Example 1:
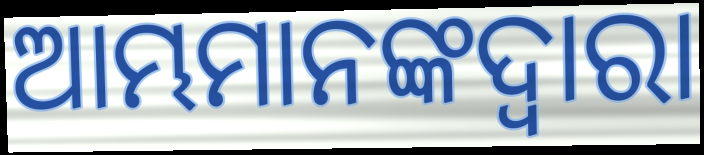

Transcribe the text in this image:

ଆମ୍ଭମାନଙ୍କଦ୍ୱାରା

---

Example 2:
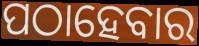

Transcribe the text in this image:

ପଠାହେବାର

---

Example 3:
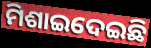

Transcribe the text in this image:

ମିଶାଇଦେଇଛି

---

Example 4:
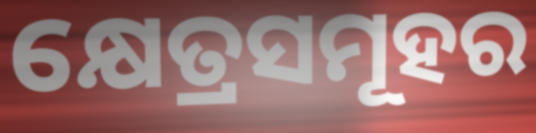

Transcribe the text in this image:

କ୍ଷେତ୍ରସମୂହର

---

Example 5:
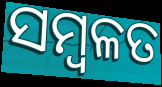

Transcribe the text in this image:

ସମ୍ବଳତ